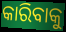
କାରିବାକୁ